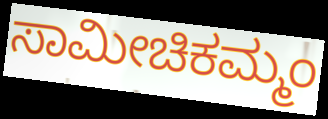
ಸಾಮೀಚಿಕಮ್ಮಂ